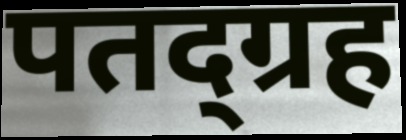
पतद्ग्रह